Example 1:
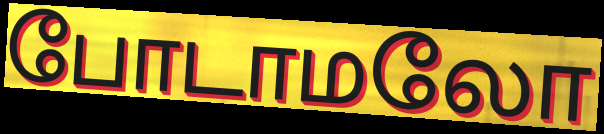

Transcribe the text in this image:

போடாமலோ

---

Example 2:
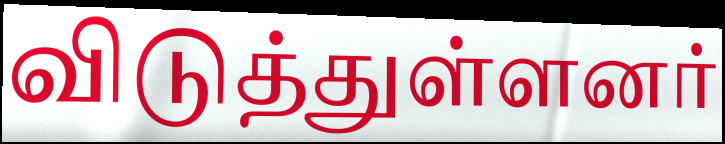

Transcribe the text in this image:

விடுத்துள்ளனர்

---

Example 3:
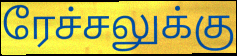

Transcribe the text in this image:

ரேச்சலுக்கு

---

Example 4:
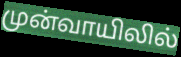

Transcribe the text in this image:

முன்வாயிலில்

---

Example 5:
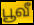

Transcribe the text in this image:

பூவீ